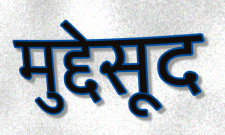
मुद्देसूद